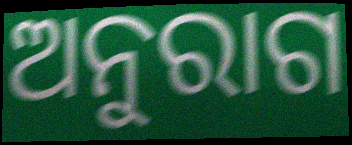
ଅନୁରାଗ